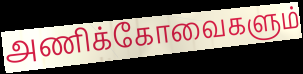
அணிக்கோவைகளும்